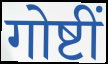
गोष्टीं